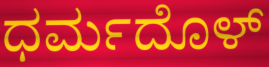
ಧರ್ಮದೊಳ್